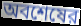
অবশেষের